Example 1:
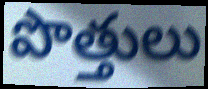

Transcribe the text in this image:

పొత్తులు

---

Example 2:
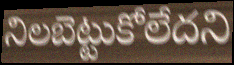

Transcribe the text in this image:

నిలబెట్టుకోలేదని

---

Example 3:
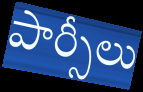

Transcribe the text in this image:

పార్సీలు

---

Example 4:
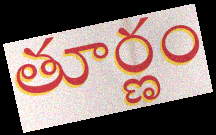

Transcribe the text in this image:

తూర్ణం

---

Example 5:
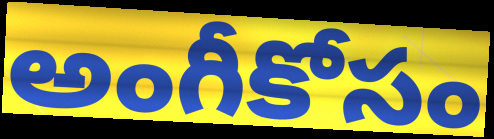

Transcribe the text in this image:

అంగీకోసం